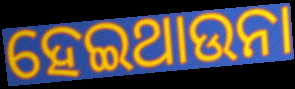
ହେଇଥାଉନା